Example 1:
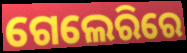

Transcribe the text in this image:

ଗେଲେରିରେ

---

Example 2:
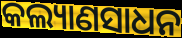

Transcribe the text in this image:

କଲ୍ୟାଣସାଧନ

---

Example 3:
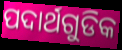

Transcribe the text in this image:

ପଦାର୍ଥଗୁଡିକ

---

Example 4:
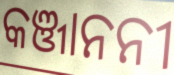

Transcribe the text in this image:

କଞ୍ଜାନନୀ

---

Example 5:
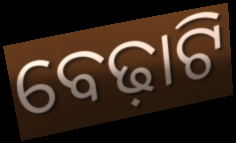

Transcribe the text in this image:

ବେଢ଼ାଟି